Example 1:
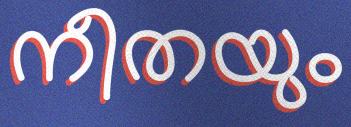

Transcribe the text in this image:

നീതയും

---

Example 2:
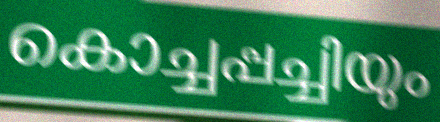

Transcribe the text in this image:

കൊച്ചപ്പച്ചിയും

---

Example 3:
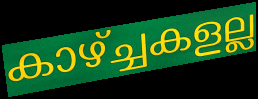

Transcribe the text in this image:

കാഴ്ച്ചകളല്ല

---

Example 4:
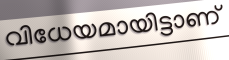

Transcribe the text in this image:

വിധേയമായിട്ടാണ്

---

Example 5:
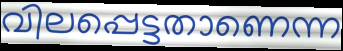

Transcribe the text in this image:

വിലപ്പെട്ടതാണെന്ന